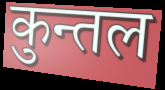
कुन्तल